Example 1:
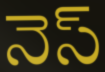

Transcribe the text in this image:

నెస్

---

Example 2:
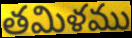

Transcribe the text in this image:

తమిళము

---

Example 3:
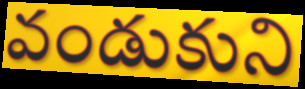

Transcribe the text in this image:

వండుకుని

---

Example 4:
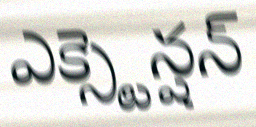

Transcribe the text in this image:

ఎక్స్టెన్షన్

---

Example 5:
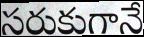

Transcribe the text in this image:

సరుకుగానే